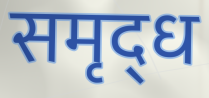
समृद्ध